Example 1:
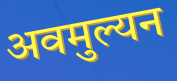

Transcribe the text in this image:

अवमुल्यन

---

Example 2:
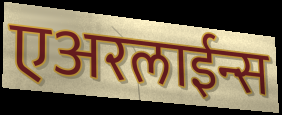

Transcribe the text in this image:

एअरलाईन्स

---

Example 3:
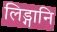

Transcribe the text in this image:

लिड्गानि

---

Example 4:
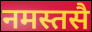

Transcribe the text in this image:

नमस्तसै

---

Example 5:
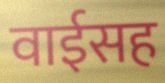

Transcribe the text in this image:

वाईसह